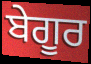
ਬੇਗੂਰ